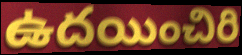
ఉదయించిరి